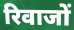
रिवाजों